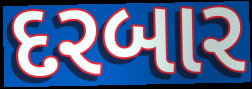
દરબાર